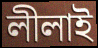
লীলাই